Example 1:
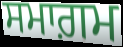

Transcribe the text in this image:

ਸਮਾਗ਼ਮ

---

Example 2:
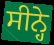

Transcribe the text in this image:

ਸੀਨ੍ਹੇ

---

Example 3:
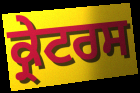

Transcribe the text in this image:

ਕ੍ਰੇਟਰਸ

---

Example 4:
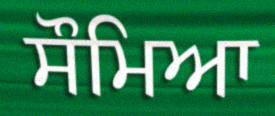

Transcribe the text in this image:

ਸੌਮਿਆ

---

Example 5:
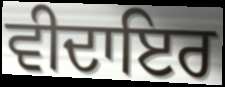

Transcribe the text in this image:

ਵੀਦਾਇਰ